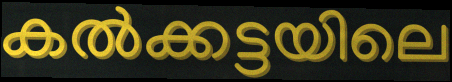
കൽക്കട്ടയിലെ